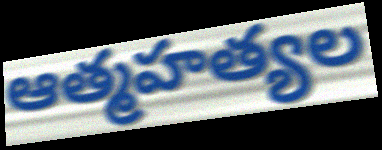
ఆత్మహత్యల